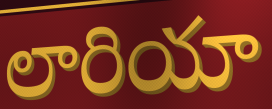
లారియా